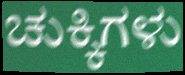
ಚುಕ್ಕಿಗಳು